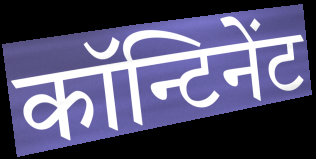
कॉन्टिनेंट